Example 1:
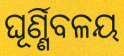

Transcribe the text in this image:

ଘୂର୍ଣ୍ଣିବଳୟ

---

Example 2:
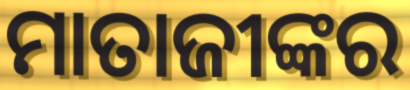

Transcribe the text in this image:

ମାତାଜୀଙ୍କର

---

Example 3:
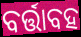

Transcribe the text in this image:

ବର୍ତ୍ତାବହ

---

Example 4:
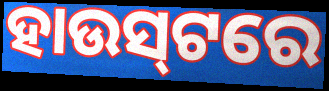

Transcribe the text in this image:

ହାଉସ୍‌ଟରେ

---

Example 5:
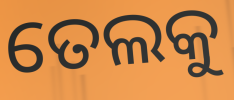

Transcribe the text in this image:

ତେଲକୁ